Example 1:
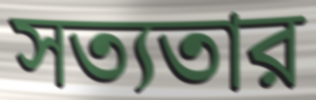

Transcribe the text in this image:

সত্যতার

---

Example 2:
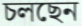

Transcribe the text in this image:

চলছেন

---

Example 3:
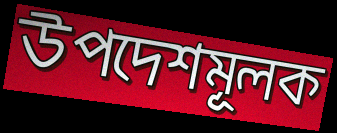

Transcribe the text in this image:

উপদেশমূলক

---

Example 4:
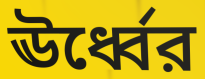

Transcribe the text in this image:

ঊর্ধ্বের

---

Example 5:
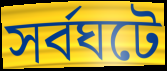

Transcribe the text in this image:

সর্বঘটে